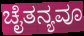
ಚೈತನ್ಯವೂ